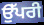
ਉੱਪਰੀ